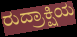
ರುದ್ರಾಕ್ಷಿಯ